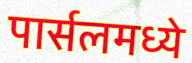
पार्सलमध्ये